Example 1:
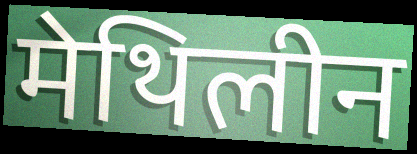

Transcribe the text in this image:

मेथिलीन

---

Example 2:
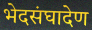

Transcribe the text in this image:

भेदसंघादेण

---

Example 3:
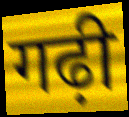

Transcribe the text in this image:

गढ़ी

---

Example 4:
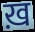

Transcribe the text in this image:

ख़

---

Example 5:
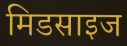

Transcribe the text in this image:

मिडसाइज